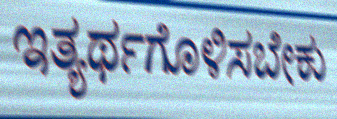
ಇತ್ಯರ್ಥಗೊಳಿಸಬೇಕು